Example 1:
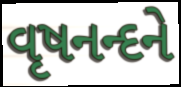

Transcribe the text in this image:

વૃષનન્દને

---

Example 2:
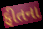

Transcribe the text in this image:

ફીતના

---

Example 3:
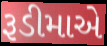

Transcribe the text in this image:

રૂડીમાએ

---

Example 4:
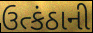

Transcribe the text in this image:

ઉત્કંઠાની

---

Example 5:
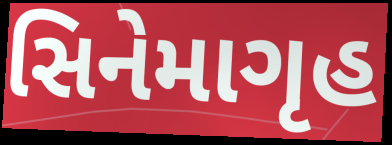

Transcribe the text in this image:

સિનેમાગૃહ